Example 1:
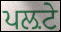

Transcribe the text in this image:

ਪਲ਼ਟੇ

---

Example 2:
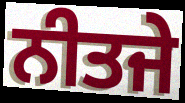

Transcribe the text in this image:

ਨੀਤਜੇ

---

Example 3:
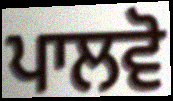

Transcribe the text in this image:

ਪਾਲਵੋ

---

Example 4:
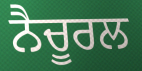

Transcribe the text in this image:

ਨੈਚੂਰਲ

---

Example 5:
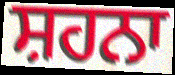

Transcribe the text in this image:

ਸ਼ਹਨਾ